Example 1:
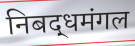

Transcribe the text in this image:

निबद्धमंगल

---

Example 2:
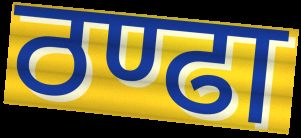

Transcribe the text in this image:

ठण्ढा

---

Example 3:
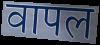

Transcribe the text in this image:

वापल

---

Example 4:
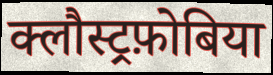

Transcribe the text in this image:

क्लौस्ट्रफ़ोबिया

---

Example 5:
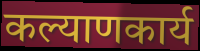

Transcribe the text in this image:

कल्याणकार्य